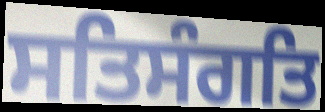
ਸਤਿਸੰਗਤਿ